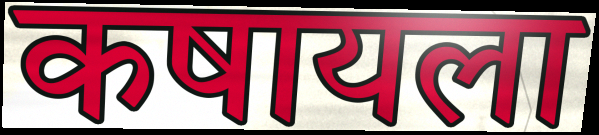
कषायला